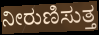
ನೀರುಣಿಸುತ್ತ